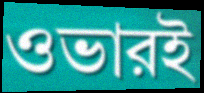
ওভারই